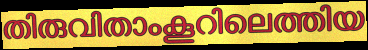
തിരുവിതാംകൂറിലെത്തിയ